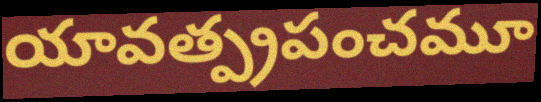
యావత్ప్రపంచమూ